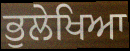
ਭੁਲੇਖਿਆ